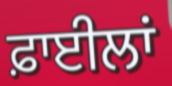
ਫ਼ਾਈਲਾਂ